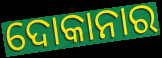
ଦୋକାନାର